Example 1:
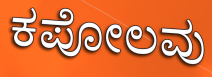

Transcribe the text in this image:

ಕಪೋಲವು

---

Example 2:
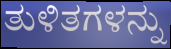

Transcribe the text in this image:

ತುಳಿತಗಳನ್ನು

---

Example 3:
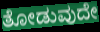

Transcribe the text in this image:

ತೋಡುವುದೇ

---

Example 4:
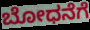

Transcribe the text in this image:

ಬೋಧನೆಗೆ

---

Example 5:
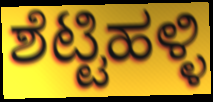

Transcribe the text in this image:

ಶೆಟ್ಟಿಹಳ್ಳಿ